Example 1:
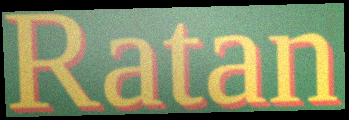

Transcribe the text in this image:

Ratan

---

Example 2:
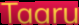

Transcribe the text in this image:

Taaru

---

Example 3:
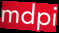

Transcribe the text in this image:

mdpi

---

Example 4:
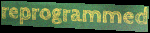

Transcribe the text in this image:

reprogrammed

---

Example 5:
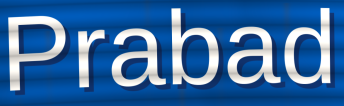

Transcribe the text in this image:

Prabad